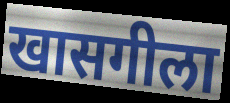
खासगीला